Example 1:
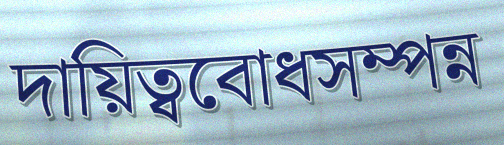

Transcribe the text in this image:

দায়িত্ববোধসম্পন্ন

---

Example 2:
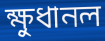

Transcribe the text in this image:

ক্ষুধানল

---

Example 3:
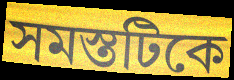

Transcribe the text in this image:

সমস্তটিকে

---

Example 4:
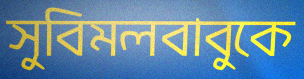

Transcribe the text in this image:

সুবিমলবাবুকে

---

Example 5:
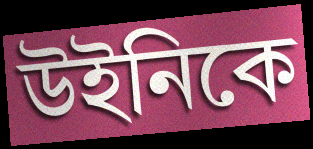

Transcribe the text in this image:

উইনিকে